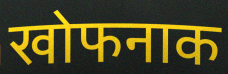
खोफनाक